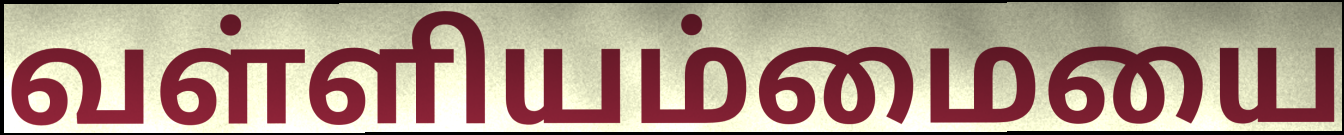
வள்ளியம்மையை